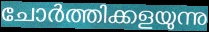
ചോർത്തിക്കളയുന്നു